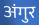
अंगुर